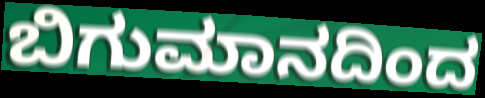
ಬಿಗುಮಾನದಿಂದ